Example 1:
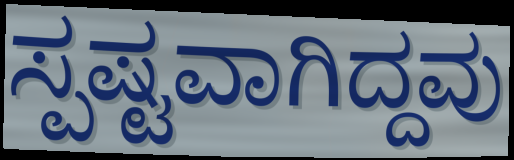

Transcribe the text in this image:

ಸ್ಪಷ್ಟವಾಗಿದ್ದವು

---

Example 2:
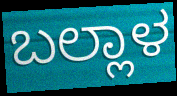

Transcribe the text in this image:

ಬಲ್ಲಾಳ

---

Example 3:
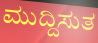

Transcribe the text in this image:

ಮುದ್ದಿಸುತ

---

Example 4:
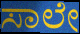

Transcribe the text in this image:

ಸಾಲೇ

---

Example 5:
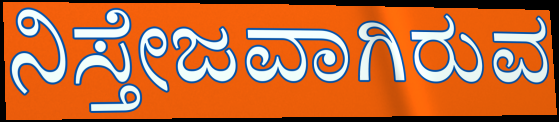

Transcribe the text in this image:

ನಿಸ್ತೇಜವಾಗಿರುವ